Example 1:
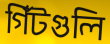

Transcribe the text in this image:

গিঁটগুলি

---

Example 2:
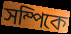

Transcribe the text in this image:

সম্পিকে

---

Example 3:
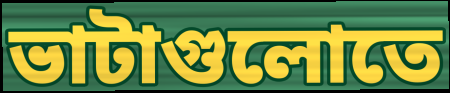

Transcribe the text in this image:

ভাটাগুলোতে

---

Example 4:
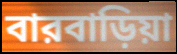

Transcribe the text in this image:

বারবাড়িয়া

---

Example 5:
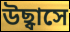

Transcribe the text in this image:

উছ্বাসে